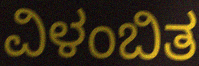
ವಿಳಂಬಿತ